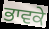
ਭਾਵਕੇ